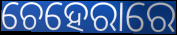
ଚେହେରାରେ